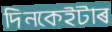
দিনকেইটাৰ